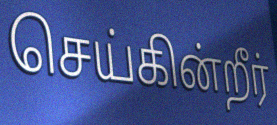
செய்கின்றீர்